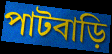
পাটবাড়ি